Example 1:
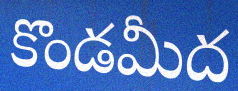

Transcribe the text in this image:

కొండమీద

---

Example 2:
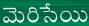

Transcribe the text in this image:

మెరిసేయి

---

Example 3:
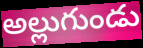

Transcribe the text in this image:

అల్లుగుండు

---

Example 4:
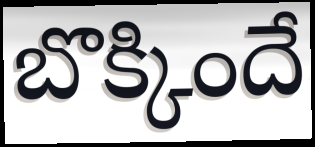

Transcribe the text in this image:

బొక్కిందే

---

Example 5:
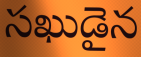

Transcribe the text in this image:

సఖుడైన